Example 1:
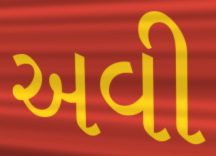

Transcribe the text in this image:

અવી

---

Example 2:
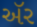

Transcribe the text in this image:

ઍર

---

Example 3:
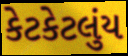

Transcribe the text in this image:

કેટકેટલુંય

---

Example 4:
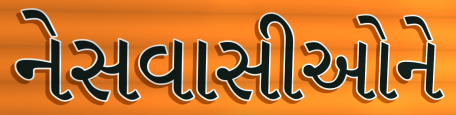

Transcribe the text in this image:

નેસવાસીઓને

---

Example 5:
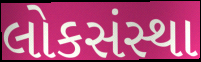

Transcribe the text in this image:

લોકસંસ્થા